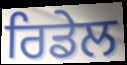
ਰਿਡੇਲ